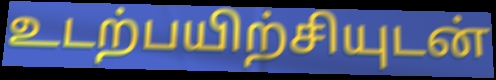
உடற்பயிற்சியுடன்